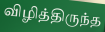
விழித்திருந்த